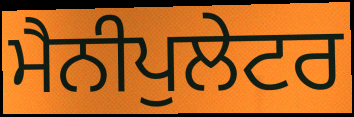
ਮੈਨੀਪੁਲੇਟਰ